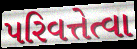
પરિવત્તેત્વા